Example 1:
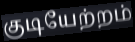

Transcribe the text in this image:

குடியேற்றம்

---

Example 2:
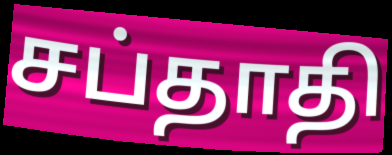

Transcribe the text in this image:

சப்தாதி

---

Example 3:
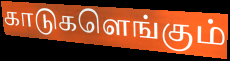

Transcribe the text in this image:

காடுகளெங்கும்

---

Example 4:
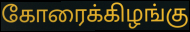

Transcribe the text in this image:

கோரைக்கிழங்கு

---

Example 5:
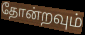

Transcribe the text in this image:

தோன்றவும்